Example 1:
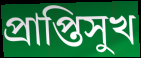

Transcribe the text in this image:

প্রাপ্তিসুখ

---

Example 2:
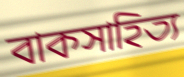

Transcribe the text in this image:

বাকসাহিত্য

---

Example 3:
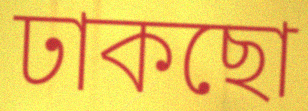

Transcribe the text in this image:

ঢাকছো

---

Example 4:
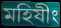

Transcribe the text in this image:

মহিষীং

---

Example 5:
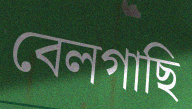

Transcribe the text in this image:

বেলগাছি